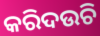
କରିଦଉଚି